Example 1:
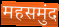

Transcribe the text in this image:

महसमुंद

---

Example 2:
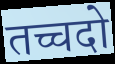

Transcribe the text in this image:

तच्चदो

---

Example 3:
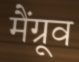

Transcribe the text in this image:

मैंग्रूव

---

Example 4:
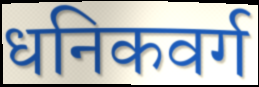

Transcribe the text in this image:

धनिकवर्ग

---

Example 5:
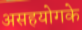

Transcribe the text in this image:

असहयोगके